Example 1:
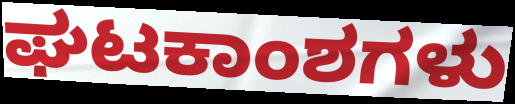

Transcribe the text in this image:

ಘಟಕಾಂಶಗಳು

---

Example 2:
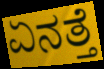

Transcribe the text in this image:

ಏನತ್ತೆ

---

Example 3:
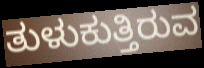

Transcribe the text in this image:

ತುಳುಕುತ್ತಿರುವ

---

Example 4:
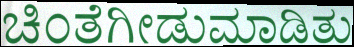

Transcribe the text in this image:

ಚಿಂತೆಗೀಡುಮಾಡಿತು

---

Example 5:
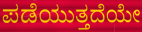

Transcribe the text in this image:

ಪಡೆಯುತ್ತದೆಯೇ